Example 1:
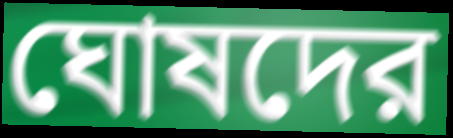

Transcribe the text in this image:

ঘোষদের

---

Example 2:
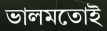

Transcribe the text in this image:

ভালমতোই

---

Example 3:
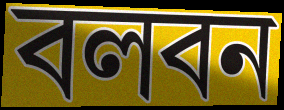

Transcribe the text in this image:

বলবন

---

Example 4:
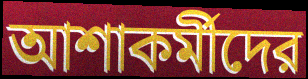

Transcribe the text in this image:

আশাকর্মীদের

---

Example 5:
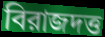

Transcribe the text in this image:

বিরাজদত্ত